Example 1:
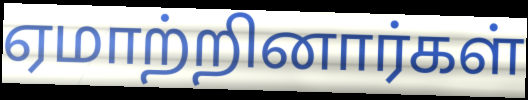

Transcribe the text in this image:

ஏமாற்றினார்கள்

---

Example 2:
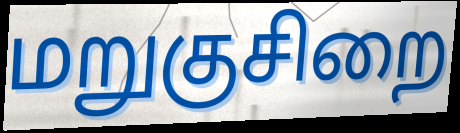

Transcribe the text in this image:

மறுகுசிறை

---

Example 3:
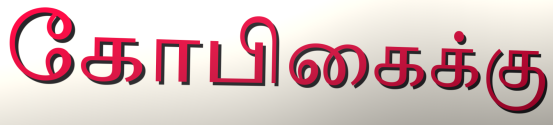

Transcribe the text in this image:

கோபிகைக்கு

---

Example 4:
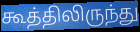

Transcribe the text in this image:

கூத்திலிருந்து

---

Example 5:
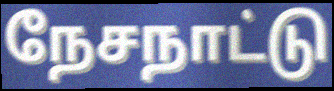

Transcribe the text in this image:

நேசநாட்டு